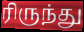
ரிருந்து